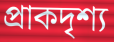
প্রাকদৃশ্য